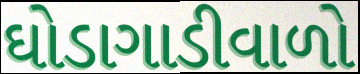
ઘોડાગાડીવાળો